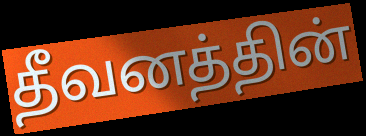
தீவனத்தின்